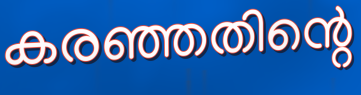
കരഞ്ഞതിന്റെ